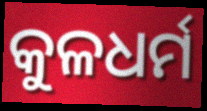
କୁଳଧର୍ମ